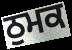
ਠੁਮਕ